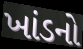
ખાંડનો